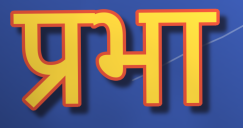
प्रभा